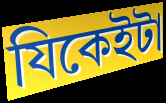
যিকেইটা